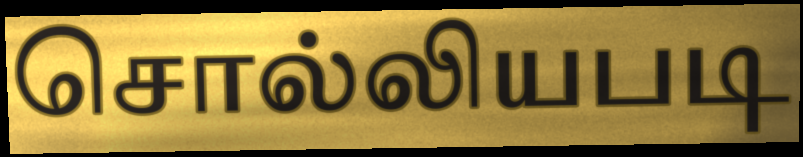
சொல்லியபடி